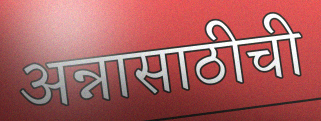
अन्नासाठीची